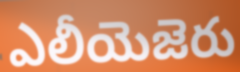
ఎలీయెజెరు